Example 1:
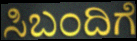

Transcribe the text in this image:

ಸಿಬಂದಿಗೆ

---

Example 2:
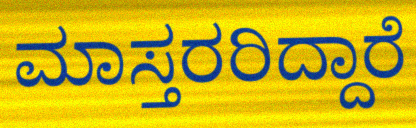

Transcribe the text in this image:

ಮಾಸ್ತರರಿದ್ದಾರೆ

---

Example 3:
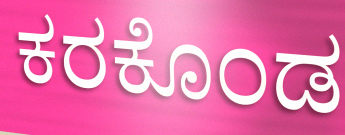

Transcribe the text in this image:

ಕರಕೊಂಡ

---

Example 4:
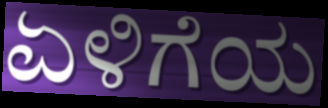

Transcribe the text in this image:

ಏಳಿಗೆಯ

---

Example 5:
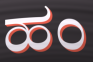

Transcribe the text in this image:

ಹಂ